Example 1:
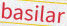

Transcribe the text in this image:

basilar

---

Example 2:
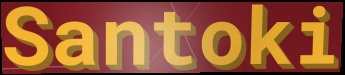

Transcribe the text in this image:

Santoki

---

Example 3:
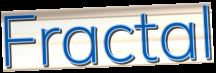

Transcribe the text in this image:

Fractal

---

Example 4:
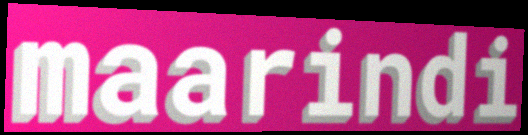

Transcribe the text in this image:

maarindi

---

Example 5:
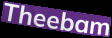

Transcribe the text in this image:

Theebam